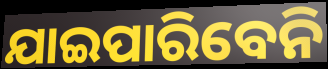
ଯାଇପାରିବେନି